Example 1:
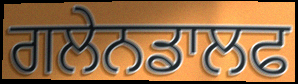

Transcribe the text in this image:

ਗਲੇਨਡਾਲਫ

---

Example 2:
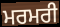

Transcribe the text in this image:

ਮਰਮਰੀ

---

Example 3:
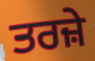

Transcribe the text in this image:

ਤਰਜ਼ੇ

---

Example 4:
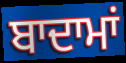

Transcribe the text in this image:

ਬਾਦਾਮਾਂ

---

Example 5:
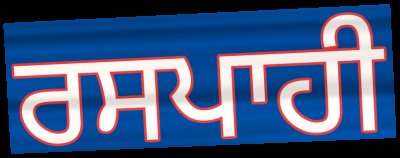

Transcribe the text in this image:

ਰਸਪਾਹੀ